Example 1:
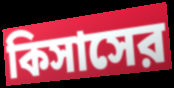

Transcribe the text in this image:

কিসাসের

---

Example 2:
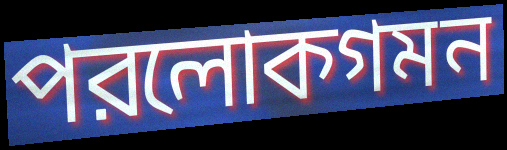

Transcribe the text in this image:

পরলোকগমন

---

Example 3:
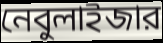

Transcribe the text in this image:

নেবুলাইজার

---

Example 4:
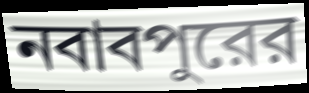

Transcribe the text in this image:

নবাবপুরের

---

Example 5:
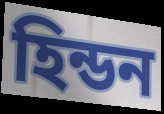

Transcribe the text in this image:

হিন্ডন